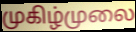
முகிழ்முலை